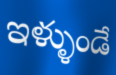
ఇళ్ళుండే